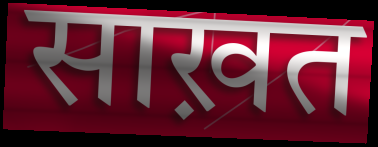
साख़त